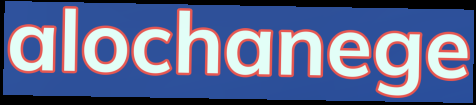
alochanege